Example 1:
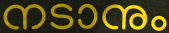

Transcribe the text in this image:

നടാനും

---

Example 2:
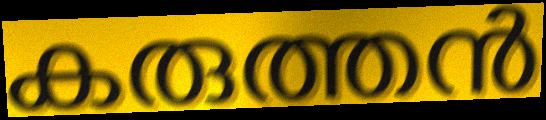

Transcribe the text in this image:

കരുത്തൻ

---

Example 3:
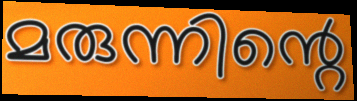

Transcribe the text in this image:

മരുന്നിന്റെ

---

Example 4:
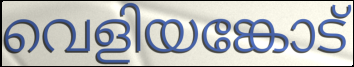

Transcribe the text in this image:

വെളിയങ്കോട്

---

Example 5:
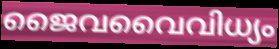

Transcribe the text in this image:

ജൈവവൈവിധ്യം